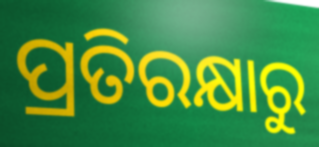
ପ୍ରତିରକ୍ଷାରୁ